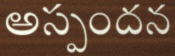
అస్పందన